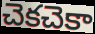
చెకచెకా